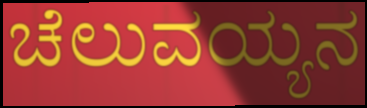
ಚೆಲುವಯ್ಯನ